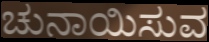
ಚುನಾಯಿಸುವ